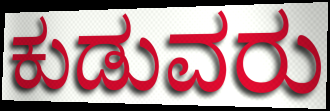
ಕುಡುವರು